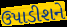
ઉપાડીશને